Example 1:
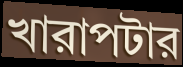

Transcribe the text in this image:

খারাপটার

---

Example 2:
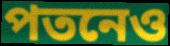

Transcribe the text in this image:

পতনেও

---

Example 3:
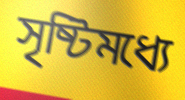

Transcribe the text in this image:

সৃষ্টিমধ্যে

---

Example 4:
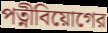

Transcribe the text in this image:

পত্নীবিয়োগের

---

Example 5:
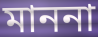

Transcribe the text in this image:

মাননা